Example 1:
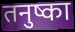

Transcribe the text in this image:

तनुष्का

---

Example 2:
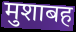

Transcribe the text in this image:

मुशाबह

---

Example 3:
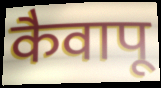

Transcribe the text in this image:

कैवापू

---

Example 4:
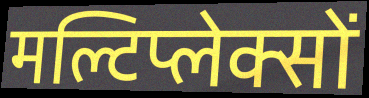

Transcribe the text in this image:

मल्टिप्लेक्सों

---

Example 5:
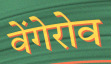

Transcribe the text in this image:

वेंगेरोव